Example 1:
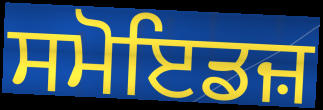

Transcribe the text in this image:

ਸਮੋਇਡਜ਼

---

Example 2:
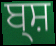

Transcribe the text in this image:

ਬ੍ਸ਼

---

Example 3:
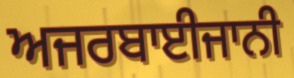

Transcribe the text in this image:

ਅਜਰਬਾਈਜਾਨੀ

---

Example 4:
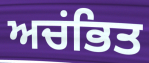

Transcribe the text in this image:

ਅਚਂਭਿਤ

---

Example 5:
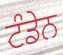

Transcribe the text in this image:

ਟੰਡੇਨ